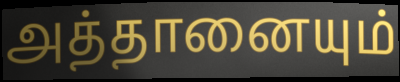
அத்தானையும்